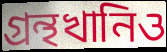
গ্রন্থখানিও